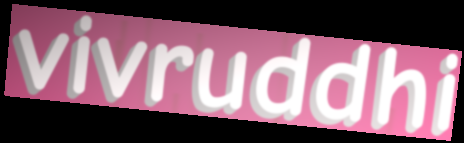
vivruddhi